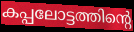
കപ്പലോട്ടത്തിന്റെ